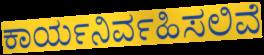
ಕಾರ್ಯನಿರ್ವಹಿಸಲಿವೆ